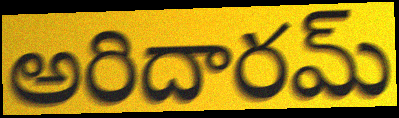
అరిదారమ్